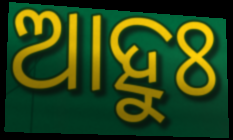
ଆହୁଃ